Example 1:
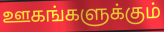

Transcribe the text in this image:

ஊகங்களுக்கும்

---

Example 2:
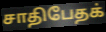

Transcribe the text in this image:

சாதிபேதக்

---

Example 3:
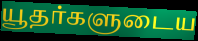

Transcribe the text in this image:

யூதர்களுடைய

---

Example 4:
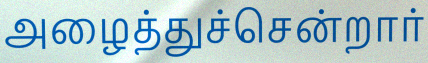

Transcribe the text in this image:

அழைத்துச்சென்றார்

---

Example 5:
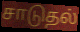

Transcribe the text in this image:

சாடுதல்